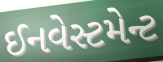
ઈનવેસ્ટમેન્ટ